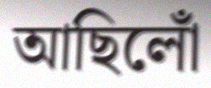
আছিলোঁ